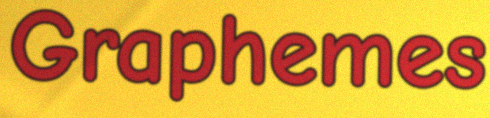
Graphemes